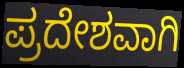
ಪ್ರದೇಶವಾಗಿ